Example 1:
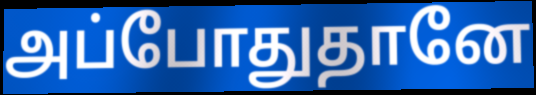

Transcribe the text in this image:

அப்போதுதானே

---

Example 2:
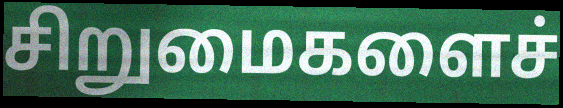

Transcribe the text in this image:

சிறுமைகளைச்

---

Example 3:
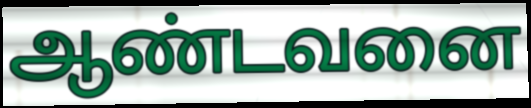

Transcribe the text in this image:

ஆண்டவனை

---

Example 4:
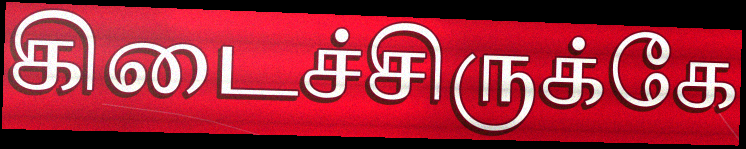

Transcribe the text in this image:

கிடைச்சிருக்கே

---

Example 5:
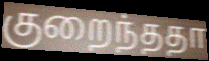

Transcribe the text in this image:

குறைந்ததா